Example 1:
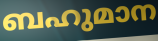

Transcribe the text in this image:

ബഹുമാന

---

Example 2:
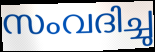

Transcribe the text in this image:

സംവദിച്ചു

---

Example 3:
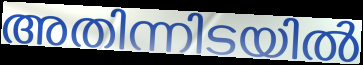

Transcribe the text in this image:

അതിന്നിടയിൽ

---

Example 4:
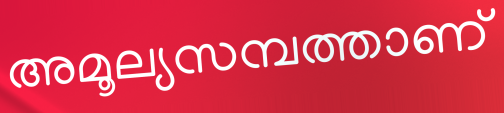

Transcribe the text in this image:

അമൂല്യസമ്പത്താണ്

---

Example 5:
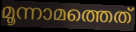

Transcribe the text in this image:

മൂന്നാമത്തെത്